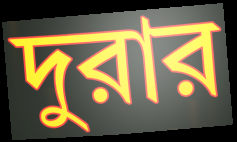
দুরার